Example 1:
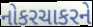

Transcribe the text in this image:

નોકરચાકરને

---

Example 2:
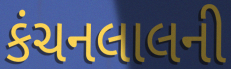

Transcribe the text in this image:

કંચનલાલની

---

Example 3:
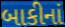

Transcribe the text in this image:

બાકીનાં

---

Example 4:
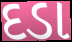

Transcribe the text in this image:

દડા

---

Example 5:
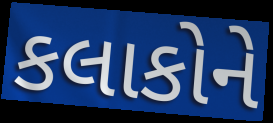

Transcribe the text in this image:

કલાકોને